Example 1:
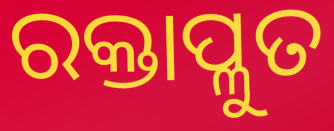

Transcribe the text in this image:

ରକ୍ତାପ୍ଳୁତ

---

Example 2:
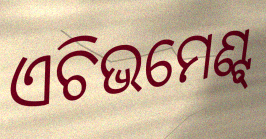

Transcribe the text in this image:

ଏଚିଭମେଣ୍ଟ୍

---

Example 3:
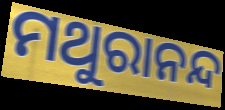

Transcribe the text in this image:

ମଥୁରାନନ୍ଦ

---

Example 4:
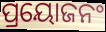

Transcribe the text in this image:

ପ୍ରୟୋଜନଂ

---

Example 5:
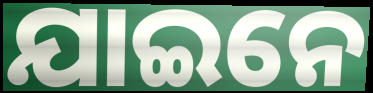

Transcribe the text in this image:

ଯାଇନେ